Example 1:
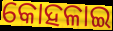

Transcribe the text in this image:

କୋହଳାଇ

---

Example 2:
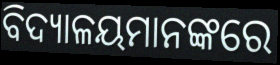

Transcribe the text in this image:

ବିଦ୍ୟାଳୟମାନଙ୍କରେ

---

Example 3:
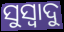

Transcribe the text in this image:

ସୁସ୍ୱାଦୁ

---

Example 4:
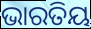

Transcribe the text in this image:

ଭାରତିୟ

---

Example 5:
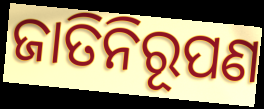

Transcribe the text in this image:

ଜାତିନିରୂପଣ